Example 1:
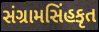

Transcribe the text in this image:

સંગ્રામસિંહકૃત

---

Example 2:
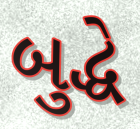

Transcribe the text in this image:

બુદ્ધે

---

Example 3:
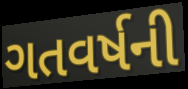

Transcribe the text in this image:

ગતવર્ષની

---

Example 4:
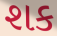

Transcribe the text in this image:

શક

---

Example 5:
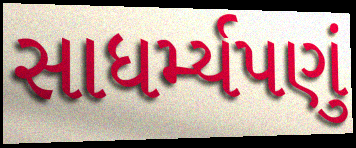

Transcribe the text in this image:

સાધર્મ્યપણું